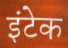
इंटेक